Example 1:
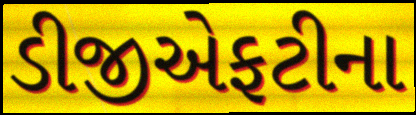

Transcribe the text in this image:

ડીજીએફટીના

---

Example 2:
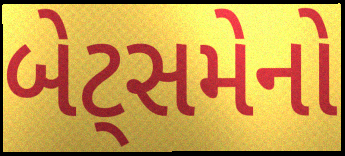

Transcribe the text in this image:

બેટ્સમેનો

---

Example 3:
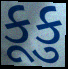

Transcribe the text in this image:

કૂકુ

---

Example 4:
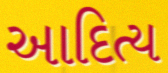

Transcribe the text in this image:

આદિત્ય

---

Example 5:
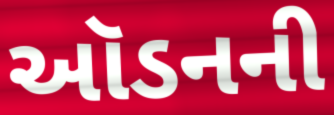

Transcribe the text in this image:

ઑડનની